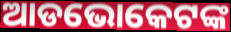
ଆଡଭୋକେଟଙ୍କ